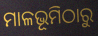
ମାଳଭୂମିଠାରୁ